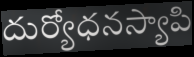
దుర్యోధనస్యాపి